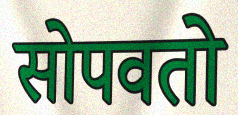
सोपवतो